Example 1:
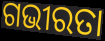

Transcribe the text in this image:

ଗଭୀରତା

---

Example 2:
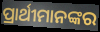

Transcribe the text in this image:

ପ୍ରାର୍ଥୀମାନଙ୍କର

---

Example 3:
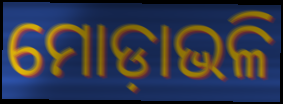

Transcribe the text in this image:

ମୋଡ଼ାଭଳି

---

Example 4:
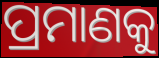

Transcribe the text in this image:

ପ୍ରମାଣକୁ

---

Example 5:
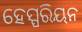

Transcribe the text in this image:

ହେସ୍ପରିୟନ